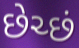
છેચ્છં